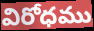
విరోధము